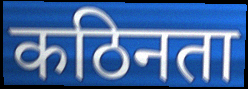
कठिनता